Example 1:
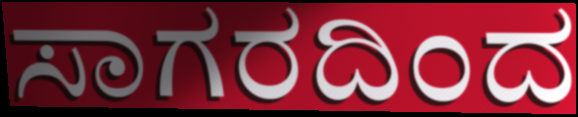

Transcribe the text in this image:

ಸಾಗರದಿಂದ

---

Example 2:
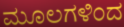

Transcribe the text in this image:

ಮೂಲಗಳಿಂದ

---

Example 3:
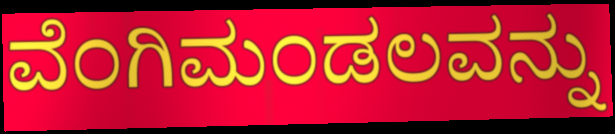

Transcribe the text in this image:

ವೆಂಗಿಮಂಡಲವನ್ನು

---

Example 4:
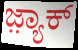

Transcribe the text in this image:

ಜ಼್ಯಾಕ್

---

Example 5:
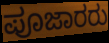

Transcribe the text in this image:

ಪೂಜಾರರು